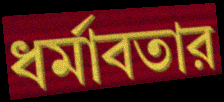
ধর্মাবতার